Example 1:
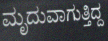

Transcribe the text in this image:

ಮೃದುವಾಗುತ್ತಿದ್ದ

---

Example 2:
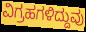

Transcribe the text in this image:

ವಿಗ್ರಹಗಳಿದ್ದುವು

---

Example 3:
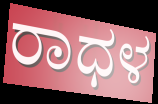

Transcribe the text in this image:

ರಾಧಳ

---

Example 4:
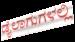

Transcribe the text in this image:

ಡೈಲಾಗುಗಳಲ್ಲಿ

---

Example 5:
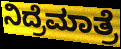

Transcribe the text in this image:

ನಿದ್ರೆಮಾತ್ರೆ